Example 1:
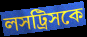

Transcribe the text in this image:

লসট্রিসকে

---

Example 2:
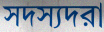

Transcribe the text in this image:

সদস্যদরা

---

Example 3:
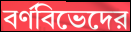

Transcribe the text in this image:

বর্ণবিভেদের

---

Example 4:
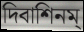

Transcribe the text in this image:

দিবাশিনম্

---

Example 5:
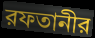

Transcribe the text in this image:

রফতানীর